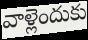
వాళ్లెందుకు